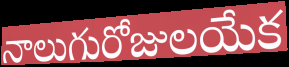
నాలుగురోజులయేక